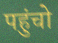
पहुंचो